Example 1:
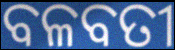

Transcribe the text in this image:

ବଳବତୀ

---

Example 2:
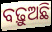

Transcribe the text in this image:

ବଢ଼ୁଅଛି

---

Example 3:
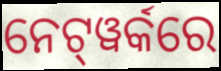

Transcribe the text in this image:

ନେଟ୍‍ୱର୍କରେ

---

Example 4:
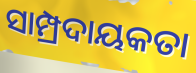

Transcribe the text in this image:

ସାମ୍ପ୍ରଦାୟକତା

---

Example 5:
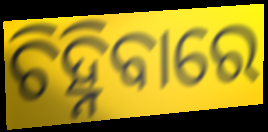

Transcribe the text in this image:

ଚିହ୍ନିବାରେ